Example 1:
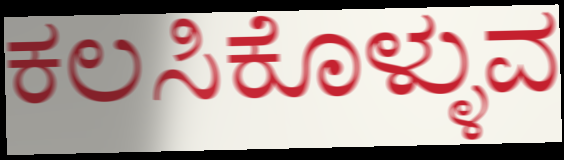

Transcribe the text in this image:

ಕಲಸಿಕೊಳ್ಳುವ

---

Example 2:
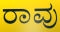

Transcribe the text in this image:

ರಾವು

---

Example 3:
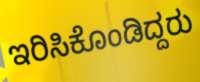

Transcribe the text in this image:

ಇರಿಸಿಕೊಂಡಿದ್ದರು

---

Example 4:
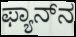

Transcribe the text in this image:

ಫ್ಯಾನ್‌ನ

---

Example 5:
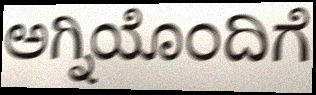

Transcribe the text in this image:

ಅಗ್ನಿಯೊಂದಿಗೆ